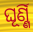
ଘୂର୍ଣ୍ଣି